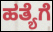
ಹತ್ಯೆಗೆ